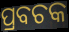
ପ୍ରବଚକ